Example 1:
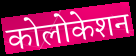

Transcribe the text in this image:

कोलोकेशन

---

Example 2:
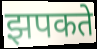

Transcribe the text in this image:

झपकते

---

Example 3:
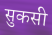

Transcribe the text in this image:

सुकसी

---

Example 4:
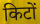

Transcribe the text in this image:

किटों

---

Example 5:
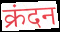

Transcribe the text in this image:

क्रंदन